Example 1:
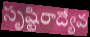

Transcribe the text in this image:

సృష్టిరాద్యేవ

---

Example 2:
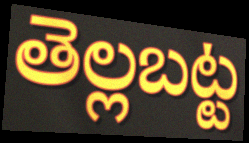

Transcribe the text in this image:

తెల్లబట్ట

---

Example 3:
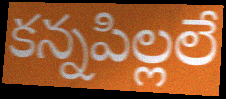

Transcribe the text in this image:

కన్నపిల్లలే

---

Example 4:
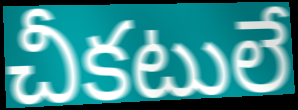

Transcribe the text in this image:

చీకటులే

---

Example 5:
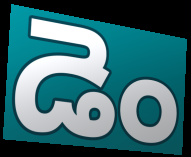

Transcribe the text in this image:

డెం